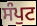
ਸੰਪੁਟ